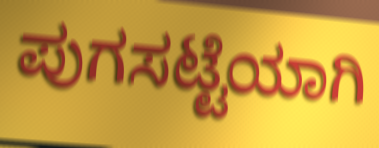
ಪುಗಸಟ್ಟೆಯಾಗಿ